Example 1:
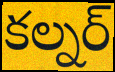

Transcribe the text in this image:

కల్నర్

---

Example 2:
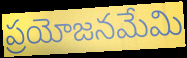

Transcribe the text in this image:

ప్రయోజనమేమి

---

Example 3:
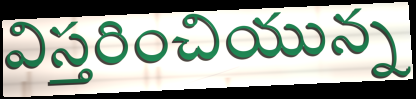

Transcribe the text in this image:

విస్తరించియున్న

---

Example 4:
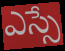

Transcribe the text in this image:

ఎస్సే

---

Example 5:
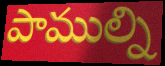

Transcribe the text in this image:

పాముల్ని